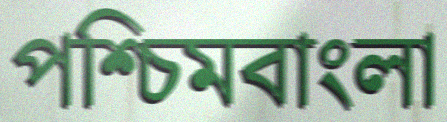
পশ্চিমবাংলা